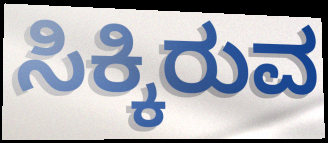
ಸಿಕ್ಕಿರುವ